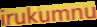
irukumnu